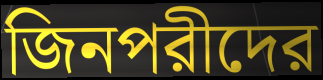
জিনপরীদের